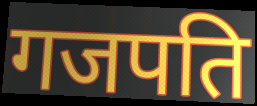
गजपति